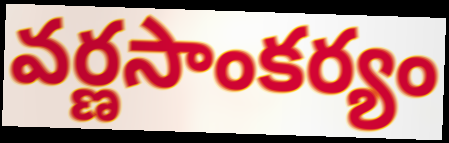
వర్ణసాంకర్యం